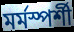
মৰ্মস্পৰ্শী